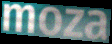
moza